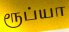
ரூப்யா